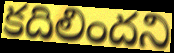
కదిలిందని